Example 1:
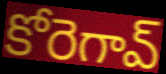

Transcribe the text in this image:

కోరెగావ్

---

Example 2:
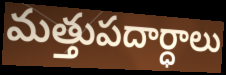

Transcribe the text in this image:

మత్తుపదార్ధాలు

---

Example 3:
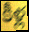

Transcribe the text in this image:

కీళ్ల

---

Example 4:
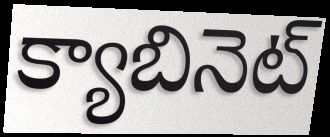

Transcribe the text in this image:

క్యాబినెట్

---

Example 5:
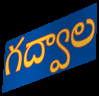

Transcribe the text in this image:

గద్వాల